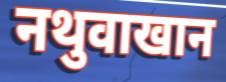
नथुवाखान